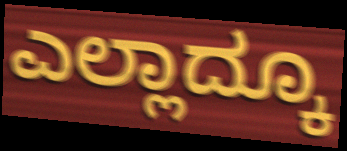
ಎಲ್ಲಾದ್ಕೂ